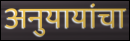
अनुयायांचा